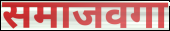
समाजवगा